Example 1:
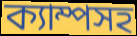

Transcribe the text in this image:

ক্যাম্পসহ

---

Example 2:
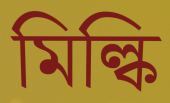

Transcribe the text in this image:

মিল্কি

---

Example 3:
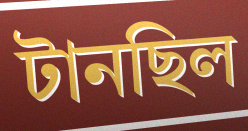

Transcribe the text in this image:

টানছিল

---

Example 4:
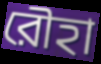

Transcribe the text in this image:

রৌহা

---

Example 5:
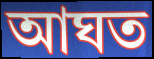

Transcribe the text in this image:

আঘত